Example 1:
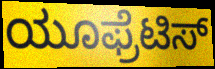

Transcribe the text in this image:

ಯೂಫ್ರೆಟಿಸ್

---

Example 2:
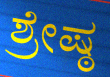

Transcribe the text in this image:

ಶ್ರೇಷ್ಠ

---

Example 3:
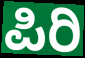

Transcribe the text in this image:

ಪಿರಿ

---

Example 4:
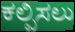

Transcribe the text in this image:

ಕಲ್ಪಿಸಲು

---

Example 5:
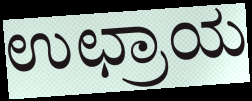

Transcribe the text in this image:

ಉಛ್ರಾಯ